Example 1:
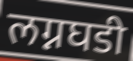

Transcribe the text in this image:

लग्नघडी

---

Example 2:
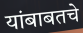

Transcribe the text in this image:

यांबाबतचे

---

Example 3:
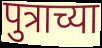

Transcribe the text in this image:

पुत्राच्या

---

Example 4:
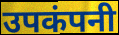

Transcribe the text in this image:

उपकंपनी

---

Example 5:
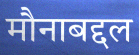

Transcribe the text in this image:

मौनाबद्दल